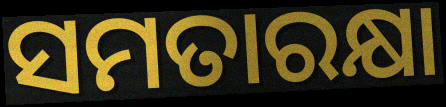
ସମତାରକ୍ଷା